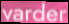
varder